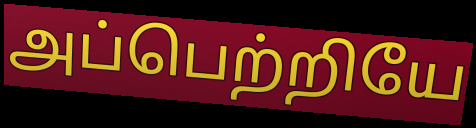
அப்பெற்றியே